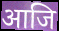
आजि